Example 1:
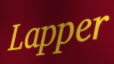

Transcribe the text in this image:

Lapper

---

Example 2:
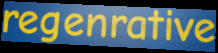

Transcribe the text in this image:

regenrative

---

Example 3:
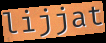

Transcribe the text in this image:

lijjat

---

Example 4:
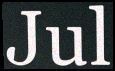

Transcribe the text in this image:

Jul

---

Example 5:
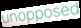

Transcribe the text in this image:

unopposed